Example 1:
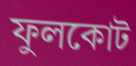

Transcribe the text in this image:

ফুলকোট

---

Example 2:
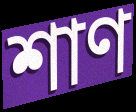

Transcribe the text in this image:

শাণ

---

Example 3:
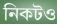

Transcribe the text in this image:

নিকটও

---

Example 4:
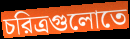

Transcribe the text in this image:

চরিত্রগুলোতে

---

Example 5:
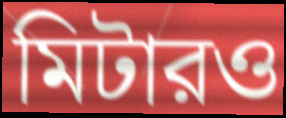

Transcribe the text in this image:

মিটারও